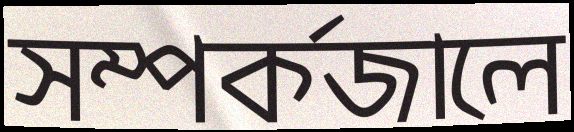
সম্পর্কজালে